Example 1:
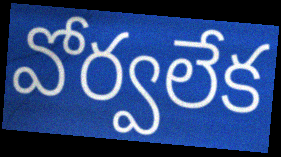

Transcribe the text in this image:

వోర్వలేక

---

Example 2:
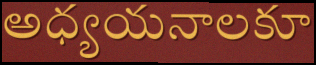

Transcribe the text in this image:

అధ్యయనాలకూ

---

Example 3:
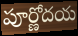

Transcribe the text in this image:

పూర్ణోదయ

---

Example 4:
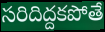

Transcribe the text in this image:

సరిదిద్దకపోతే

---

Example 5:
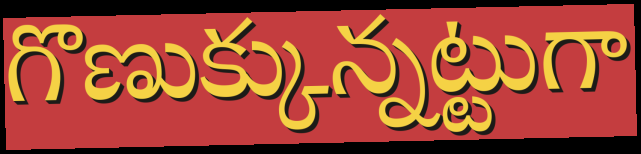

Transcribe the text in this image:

గొణుక్కున్నట్టుగా